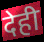
देही